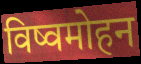
विष्वमोहन